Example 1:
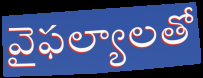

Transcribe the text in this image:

వైఫల్యాలతో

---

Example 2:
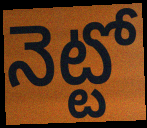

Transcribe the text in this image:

నెట్టో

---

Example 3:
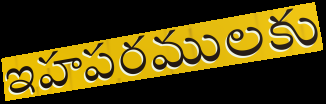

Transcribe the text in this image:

ఇహపరములకు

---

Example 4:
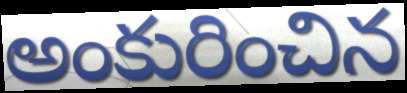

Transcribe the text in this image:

అంకురించిన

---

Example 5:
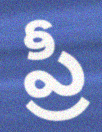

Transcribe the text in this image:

ప్రీ